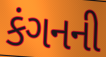
કંગનની